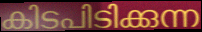
കിടപിടിക്കുന്ന